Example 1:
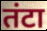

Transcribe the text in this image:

तंटा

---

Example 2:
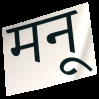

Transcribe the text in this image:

मनू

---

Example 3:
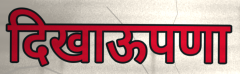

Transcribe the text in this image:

दिखाऊपणा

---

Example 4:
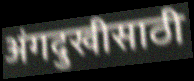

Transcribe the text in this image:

अंगदुखीसाठी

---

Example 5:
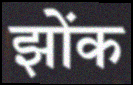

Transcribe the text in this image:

झोंक